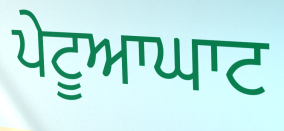
ਪੇਟੂਆਘਾਟ